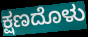
ಕ್ಷಣದೊಳು